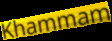
Khammam